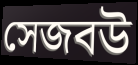
সেজবউ